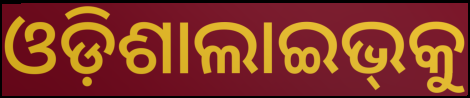
ଓଡ଼ିଶାଲାଇଭ୍‌କୁ